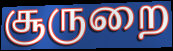
சூருறை